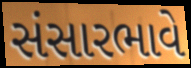
સંસારભાવે